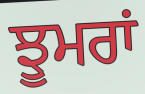
ਝੂਮਰਾਂ